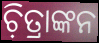
ଚ଼ିତ୍ରାଙ୍କନ